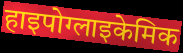
हाइपोग्लाइकेमिक